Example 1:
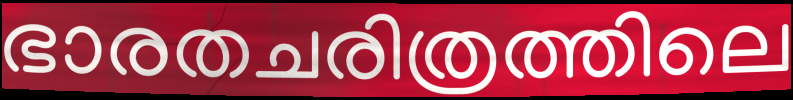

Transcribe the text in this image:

ഭാരതചരിത്രത്തിലെ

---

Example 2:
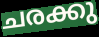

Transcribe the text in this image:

ചരക്കു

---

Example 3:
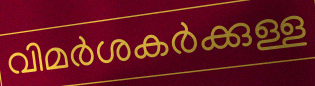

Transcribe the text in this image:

വിമർശകർക്കുള്ള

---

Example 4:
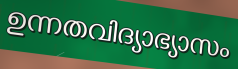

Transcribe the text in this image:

ഉന്നതവിദ്യാഭ്യാസം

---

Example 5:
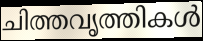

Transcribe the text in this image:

ചിത്തവൃത്തികൾ